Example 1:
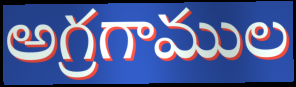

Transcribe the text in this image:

అగ్రగాముల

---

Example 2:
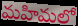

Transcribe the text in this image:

మహిమలో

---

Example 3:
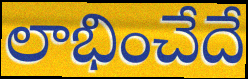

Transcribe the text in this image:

లాభించేదే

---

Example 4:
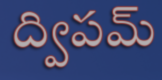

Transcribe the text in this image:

ద్విపమ్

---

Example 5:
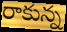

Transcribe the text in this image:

రాకున్న